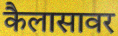
कैलासावर